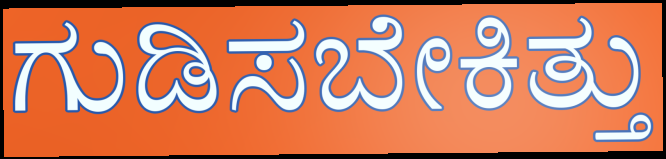
ಗುಡಿಸಬೇಕಿತ್ತು